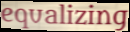
equalizing